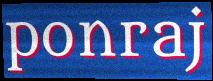
ponraj